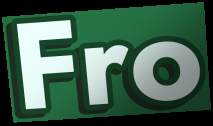
Fro